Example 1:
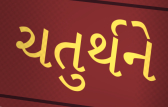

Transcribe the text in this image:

ચતુર્થને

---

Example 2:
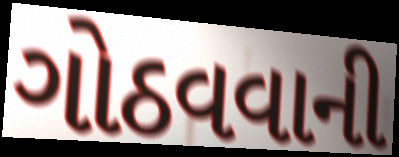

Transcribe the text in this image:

ગોઠવવાની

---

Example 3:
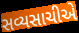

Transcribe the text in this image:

સવ્યસાચીએ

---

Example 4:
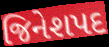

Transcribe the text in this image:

જિનેશપદ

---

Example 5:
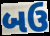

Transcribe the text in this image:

બઉ